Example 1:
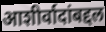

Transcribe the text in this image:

आशीर्वादांबद्दल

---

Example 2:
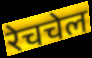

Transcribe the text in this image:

रेचचेल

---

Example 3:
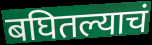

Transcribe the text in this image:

बघितल्याचं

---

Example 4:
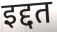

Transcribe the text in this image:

इद्दत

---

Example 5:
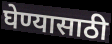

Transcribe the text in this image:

घेण्यासाठी